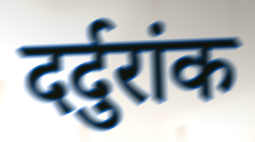
दर्दुरांक